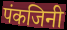
पंकजिनी